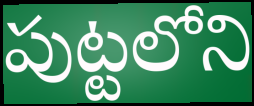
పుట్టలోని